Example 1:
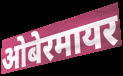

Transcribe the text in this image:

ओबेरमायर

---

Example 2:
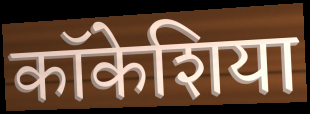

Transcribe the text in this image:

कॉकेशिया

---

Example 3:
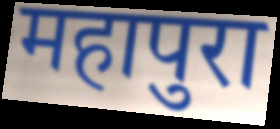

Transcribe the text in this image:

महापुरा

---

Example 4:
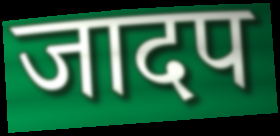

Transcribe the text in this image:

जादप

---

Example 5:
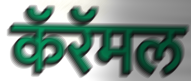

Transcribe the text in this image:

कॅरॅमल